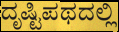
ದೃಷ್ಟಿಪಥದಲ್ಲಿ